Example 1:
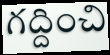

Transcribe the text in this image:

గద్దించి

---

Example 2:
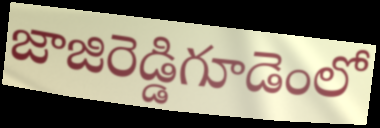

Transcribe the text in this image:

జాజిరెడ్డిగూడెంలో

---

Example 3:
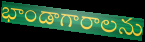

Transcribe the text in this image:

భాండాగారాలను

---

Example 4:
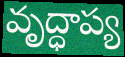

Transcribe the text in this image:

వృద్ధాప్య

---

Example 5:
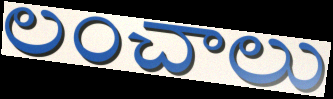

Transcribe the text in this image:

లంచాలు